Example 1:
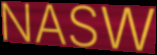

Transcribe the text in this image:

NASW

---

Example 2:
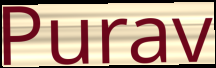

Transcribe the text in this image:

Purav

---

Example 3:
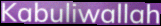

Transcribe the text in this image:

Kabuliwallah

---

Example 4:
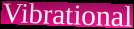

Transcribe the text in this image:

Vibrational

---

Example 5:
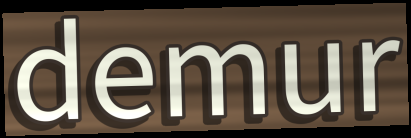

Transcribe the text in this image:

demur